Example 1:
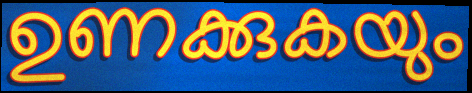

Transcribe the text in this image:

ഉണക്കുകയും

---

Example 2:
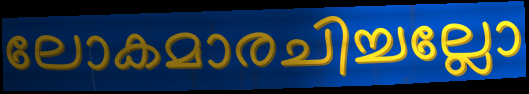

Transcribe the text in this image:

ലോകമാരചിച്ചല്ലോ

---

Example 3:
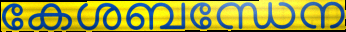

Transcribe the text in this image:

കേശബന്ധേന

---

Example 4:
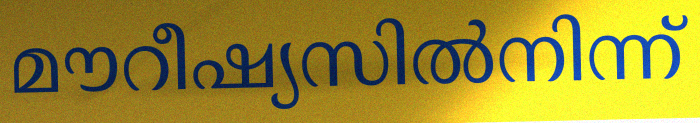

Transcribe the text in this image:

മൗറീഷ്യസിൽനിന്ന്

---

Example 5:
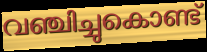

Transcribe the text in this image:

വഞ്ചിച്ചുകൊണ്ട്